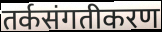
तर्कसंगतीकरण